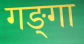
गङ्‍गा